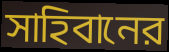
সাহিবানের